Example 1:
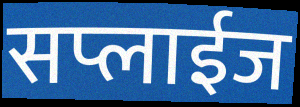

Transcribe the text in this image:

सप्लाईज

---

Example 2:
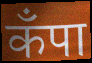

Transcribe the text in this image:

कँपा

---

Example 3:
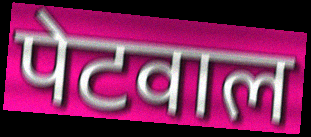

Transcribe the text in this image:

पेटवाल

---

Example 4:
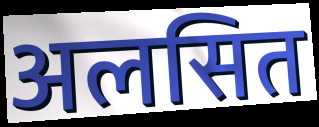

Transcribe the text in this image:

अलसित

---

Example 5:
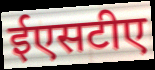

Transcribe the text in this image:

ईएसटीए